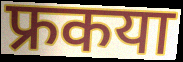
फ्रकया